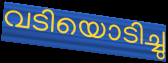
വടിയൊടിച്ചു